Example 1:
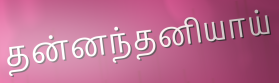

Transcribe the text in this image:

தன்னந்தனியாய்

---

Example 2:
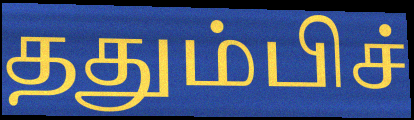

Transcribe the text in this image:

ததும்பிச்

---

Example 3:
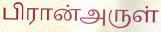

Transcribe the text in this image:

பிரான்அருள்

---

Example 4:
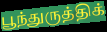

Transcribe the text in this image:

பூந்துருத்திக்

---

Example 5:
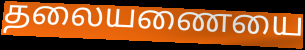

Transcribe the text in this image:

தலையணையை